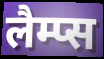
लैम्प्स